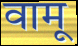
वामू